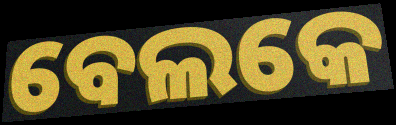
ବେଲକେ